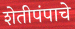
शेतीपंपाचे